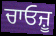
ਚਾਓਜ਼ੂ